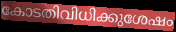
കോടതിവിധിക്കുശേഷം